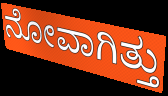
ನೋವಾಗಿತ್ತು